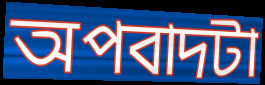
অপবাদটা